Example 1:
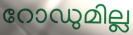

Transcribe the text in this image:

റോഡുമില്ല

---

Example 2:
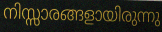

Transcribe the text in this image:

നിസ്സാരങ്ങളായിരുന്നു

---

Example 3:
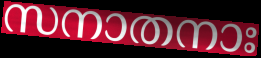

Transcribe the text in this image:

സനാതനാഃ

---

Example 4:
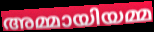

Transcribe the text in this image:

അമ്മായിയമ്മ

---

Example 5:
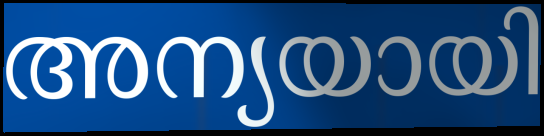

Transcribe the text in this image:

അന്യയായി